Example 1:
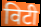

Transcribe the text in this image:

विटी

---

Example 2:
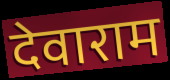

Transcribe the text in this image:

देवाराम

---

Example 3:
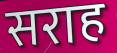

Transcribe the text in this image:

सराह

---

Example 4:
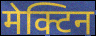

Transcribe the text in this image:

मेक्टिन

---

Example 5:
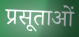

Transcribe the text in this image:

प्रसूताओं